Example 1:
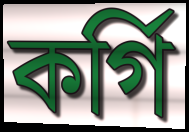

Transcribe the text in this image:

কর্গি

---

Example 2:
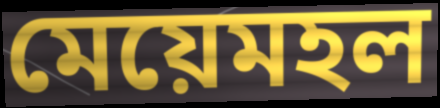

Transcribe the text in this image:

মেয়েমহল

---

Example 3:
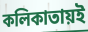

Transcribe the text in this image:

কলিকাতায়ই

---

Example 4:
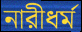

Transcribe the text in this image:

নারীধর্ম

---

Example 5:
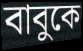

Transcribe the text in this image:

বাবুকে